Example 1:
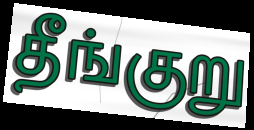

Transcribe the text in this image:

தீங்குறு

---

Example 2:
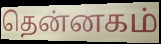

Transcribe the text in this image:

தென்னகம்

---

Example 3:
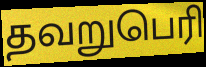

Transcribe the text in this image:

தவறுபெரி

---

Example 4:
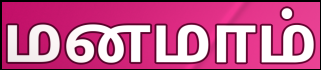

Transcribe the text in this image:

மனமாம்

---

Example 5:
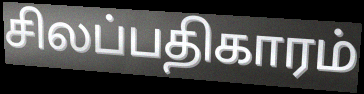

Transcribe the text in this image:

சிலப்பதிகாரம்